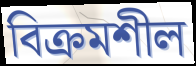
বিক্ৰমশীল